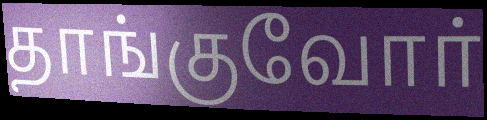
தாங்குவோர்